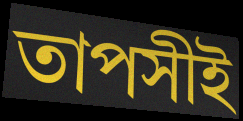
তাপসীই